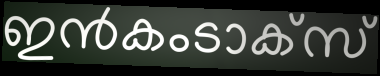
ഇൻകംടാക്സ്